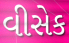
વીસેક